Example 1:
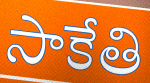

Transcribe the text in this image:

సాకేతి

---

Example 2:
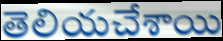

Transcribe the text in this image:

తెలియచేశాయి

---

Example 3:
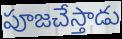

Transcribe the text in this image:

పూజచేస్తాడు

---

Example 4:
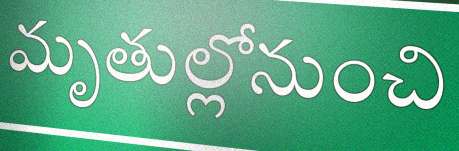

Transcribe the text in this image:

మృతుల్లోనుంచి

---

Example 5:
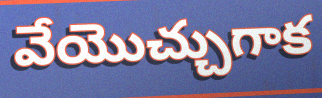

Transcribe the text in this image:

వేయొచ్చుగాక